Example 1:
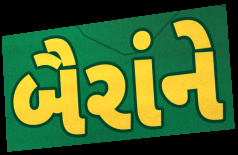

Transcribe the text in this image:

બૈરાંને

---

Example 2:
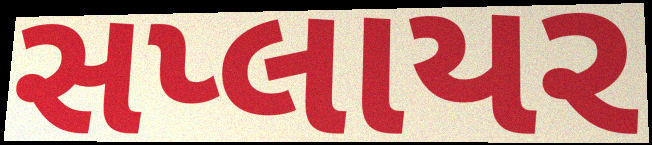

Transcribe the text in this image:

સપ્લાયર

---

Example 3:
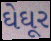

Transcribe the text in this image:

ઘેઘૂર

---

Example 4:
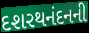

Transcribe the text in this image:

દશરથનંદનની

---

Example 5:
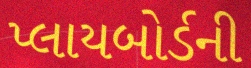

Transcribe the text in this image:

પ્લાયબોર્ડની